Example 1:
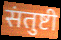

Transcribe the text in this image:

संतुष्टी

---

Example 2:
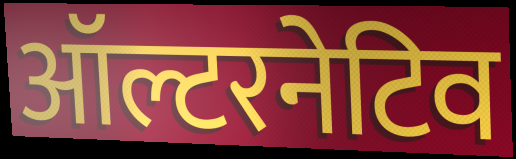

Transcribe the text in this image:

ऑल्टरनेटिव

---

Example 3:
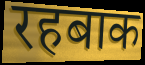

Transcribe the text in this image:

रहबाक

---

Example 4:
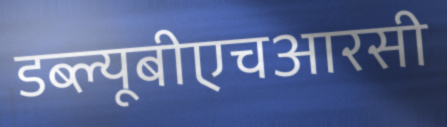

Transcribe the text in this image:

डब्ल्यूबीएचआरसी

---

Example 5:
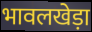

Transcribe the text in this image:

भावलखेड़ा